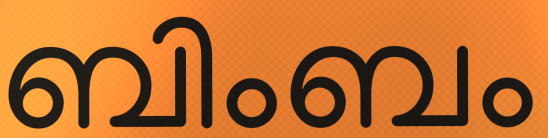
ബിംബം